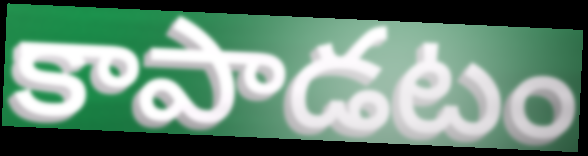
కాపాడటం